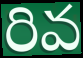
రివ